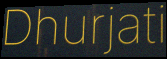
Dhurjati